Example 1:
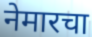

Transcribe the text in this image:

नेमारचा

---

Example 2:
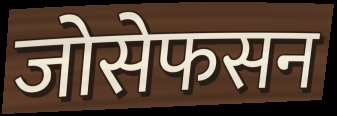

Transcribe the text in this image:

जोसेफसन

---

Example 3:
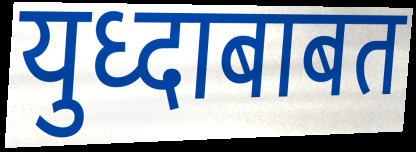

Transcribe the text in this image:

युध्दाबाबत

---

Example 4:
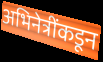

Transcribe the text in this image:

अभिनेत्रींकडून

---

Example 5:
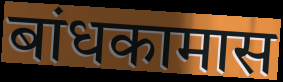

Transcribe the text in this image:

बांधकामास